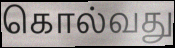
கொல்வது